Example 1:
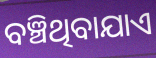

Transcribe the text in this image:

ବଞ୍ଚିଥିବାଯାଏ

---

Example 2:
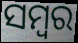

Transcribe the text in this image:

ସମ୍ବର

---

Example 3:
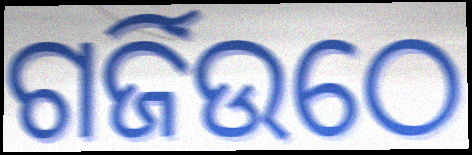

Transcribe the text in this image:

ଗର୍ଜିଉଠେ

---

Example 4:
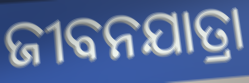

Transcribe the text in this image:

ଜୀବନଯାତ୍ରା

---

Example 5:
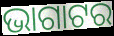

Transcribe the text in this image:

ଭାଗାଟର